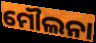
ମୌଲନା